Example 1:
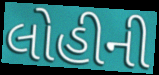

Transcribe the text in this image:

લોહીની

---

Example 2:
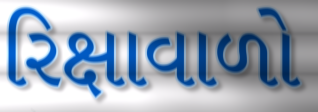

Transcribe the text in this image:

રિક્ષાવાળો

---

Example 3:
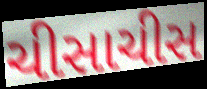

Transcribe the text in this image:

ચીસાચીસ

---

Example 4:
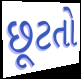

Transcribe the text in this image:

છૂટતો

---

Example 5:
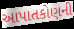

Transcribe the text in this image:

આપાતકોણની